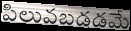
పిలువబడడమే